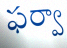
ఫర్వా